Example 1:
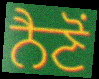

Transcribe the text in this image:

ਨੈਣੋਂ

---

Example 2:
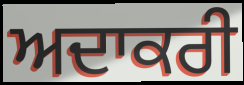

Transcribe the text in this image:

ਅਦਾਕਰੀ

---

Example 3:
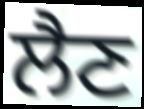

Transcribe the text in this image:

ਲੈਣ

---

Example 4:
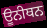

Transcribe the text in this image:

ਊਨੀਥਨ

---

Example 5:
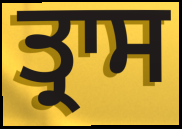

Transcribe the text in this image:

ਤ੍ਰਾਸ